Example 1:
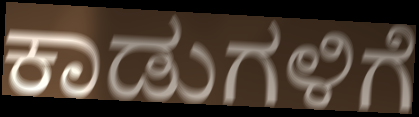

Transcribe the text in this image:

ಕಾಡುಗಳಿಗೆ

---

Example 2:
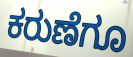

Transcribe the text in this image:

ಕರುಣೆಗೂ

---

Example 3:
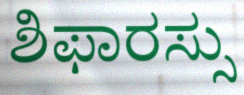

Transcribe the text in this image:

ಶಿಫಾರಸ್ಸು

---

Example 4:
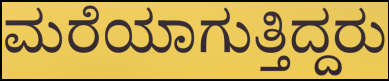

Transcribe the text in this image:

ಮರೆಯಾಗುತ್ತಿದ್ದರು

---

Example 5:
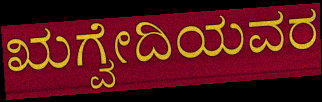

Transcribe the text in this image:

ಋಗ್ವೇದಿಯವರ